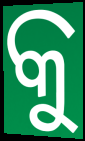
କୁ